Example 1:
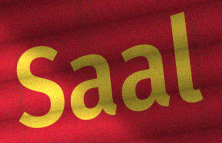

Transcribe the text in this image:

Saal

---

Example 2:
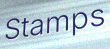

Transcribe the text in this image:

Stamps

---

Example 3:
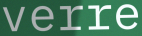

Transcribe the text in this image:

verre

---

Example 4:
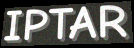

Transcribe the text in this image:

IPTAR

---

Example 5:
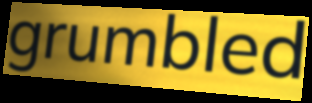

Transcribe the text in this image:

grumbled